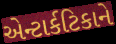
એન્ટાર્કટિકાને